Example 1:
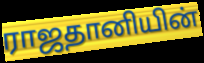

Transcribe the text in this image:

ராஜதானியின்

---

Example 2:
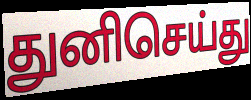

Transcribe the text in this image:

துனிசெய்து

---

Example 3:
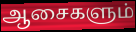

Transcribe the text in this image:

ஆசைகளும்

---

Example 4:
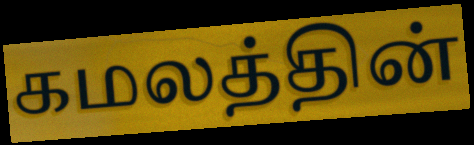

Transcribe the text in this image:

கமலத்தின்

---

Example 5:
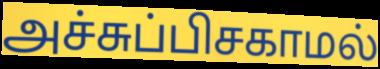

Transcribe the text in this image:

அச்சுப்பிசகாமல்